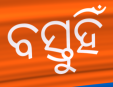
ବସ୍ତୁହିଁ